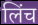
लिंच